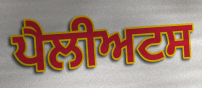
ਪੈਲੀਅਟਸ